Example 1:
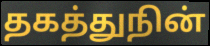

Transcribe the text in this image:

தகத்துநின்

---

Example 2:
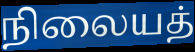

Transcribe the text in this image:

நிலையத்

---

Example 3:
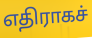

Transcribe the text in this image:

எதிராகச்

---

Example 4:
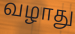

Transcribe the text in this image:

வழாது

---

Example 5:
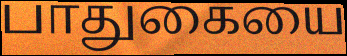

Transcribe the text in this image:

பாதுகையை